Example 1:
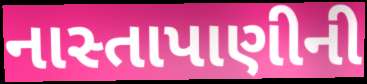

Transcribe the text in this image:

નાસ્તાપાણીની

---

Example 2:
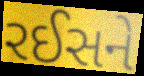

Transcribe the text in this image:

રઈસને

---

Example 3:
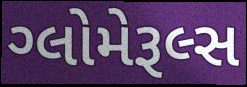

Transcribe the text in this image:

ગ્લોમેરૂલ્સ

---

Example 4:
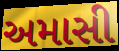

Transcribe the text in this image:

અમાસી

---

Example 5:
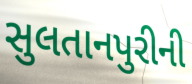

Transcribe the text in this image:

સુલતાનપુરીની